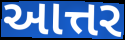
આત્તર